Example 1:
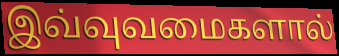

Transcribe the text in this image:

இவ்வுவமைகளால்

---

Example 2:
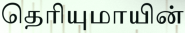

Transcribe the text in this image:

தெரியுமாயின்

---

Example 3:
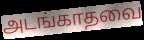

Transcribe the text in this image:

அடங்காதவை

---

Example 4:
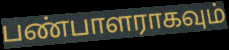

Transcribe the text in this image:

பண்பாளராகவும்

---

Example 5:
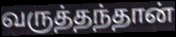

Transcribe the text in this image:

வருத்தந்தான்